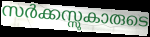
സർക്കസ്സുകാരുടെ